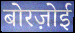
बोरज़ोई